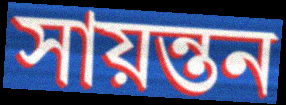
সায়ন্তন